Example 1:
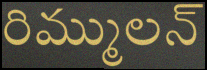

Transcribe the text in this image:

రిమ్ములన్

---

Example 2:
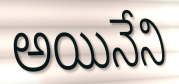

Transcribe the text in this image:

అయినేని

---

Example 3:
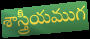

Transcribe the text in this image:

శాస్త్రీయముగ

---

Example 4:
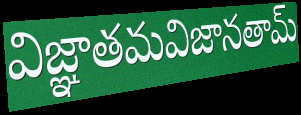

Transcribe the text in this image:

విజ్ఞాతమవిజానతామ్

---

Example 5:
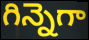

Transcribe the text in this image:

గిన్నెగా